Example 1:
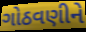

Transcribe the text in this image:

ગોઠવણીને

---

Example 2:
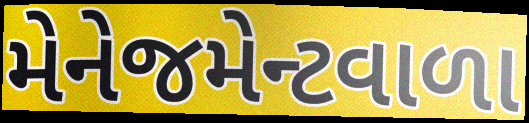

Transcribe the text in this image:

મેનેજમેન્ટવાળા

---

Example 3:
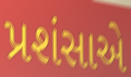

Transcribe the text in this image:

પ્રશંસાએ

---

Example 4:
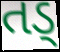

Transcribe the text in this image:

તડ્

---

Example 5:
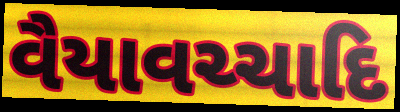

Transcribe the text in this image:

વૈયાવચ્ચાદિ